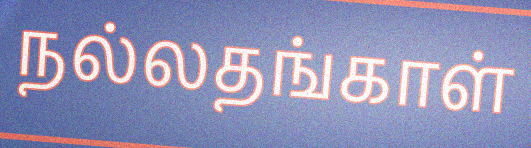
நல்லதங்காள்